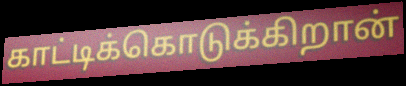
காட்டிக்கொடுக்கிறான்